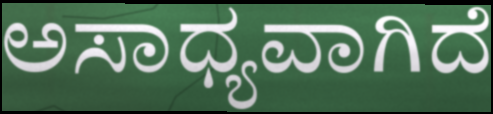
ಅಸಾಧ್ಯವಾಗಿದೆ